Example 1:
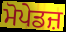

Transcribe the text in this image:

ਮੋਪੇਡਜ਼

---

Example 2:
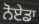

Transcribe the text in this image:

ਨੋਏਡਾ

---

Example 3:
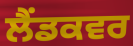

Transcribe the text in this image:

ਲੈਂਡਕਵਰ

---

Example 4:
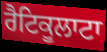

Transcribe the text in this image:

ਰੈਟਿਕੂਲਾਟਾ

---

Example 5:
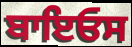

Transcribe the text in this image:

ਬਾਇਓਸ